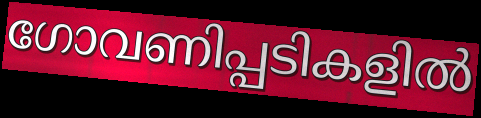
ഗോവണിപ്പടികളിൽ